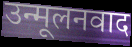
उन्मूलनवाद